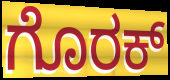
ಗೊರಕ್